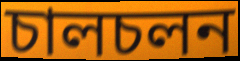
চালচলন